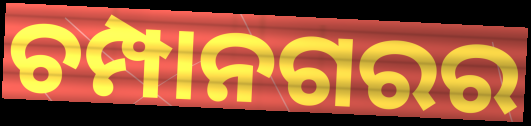
ଚମ୍ପାନଗରର